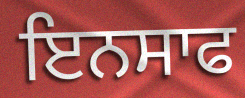
ਇਨਸਾਫ